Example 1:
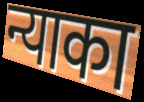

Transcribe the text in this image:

न्याका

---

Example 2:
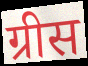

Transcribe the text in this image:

ग्रीस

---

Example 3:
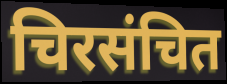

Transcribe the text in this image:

चिरसंचित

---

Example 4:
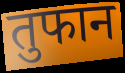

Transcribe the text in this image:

तुफान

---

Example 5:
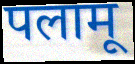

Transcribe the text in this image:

पलामू